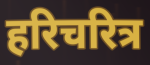
हरिचरित्र